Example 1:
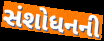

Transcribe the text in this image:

સંશોધનની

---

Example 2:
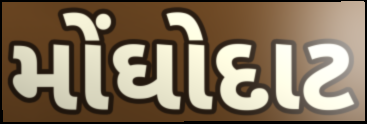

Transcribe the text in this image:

મોંઘોદાટ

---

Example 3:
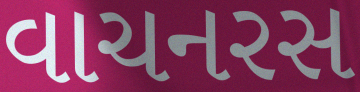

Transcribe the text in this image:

વાચનરસ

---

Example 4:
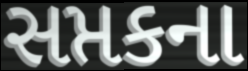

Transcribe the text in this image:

સપ્તકના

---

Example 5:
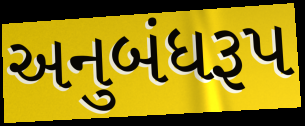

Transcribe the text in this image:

અનુબંધરૂપ